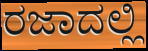
ರಜಾದಲ್ಲಿ